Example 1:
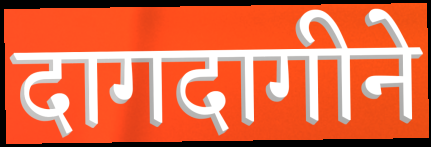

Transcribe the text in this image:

दागदागीने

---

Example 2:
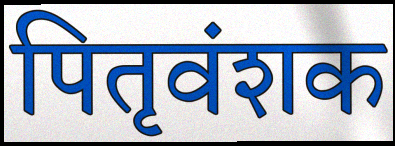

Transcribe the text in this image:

पितृवंशक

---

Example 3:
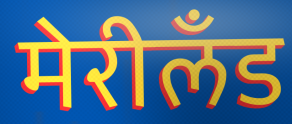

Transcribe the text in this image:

मेरीलँड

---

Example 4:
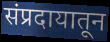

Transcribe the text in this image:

संप्रदायातून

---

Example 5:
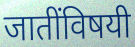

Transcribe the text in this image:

जातींविषयी